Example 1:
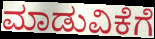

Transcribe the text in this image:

ಮಾಡುವಿಕೆಗೆ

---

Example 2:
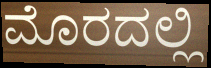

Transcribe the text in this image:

ಮೊರದಲ್ಲಿ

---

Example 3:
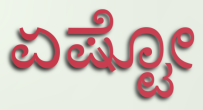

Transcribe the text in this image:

ಏಷ್ಟೋ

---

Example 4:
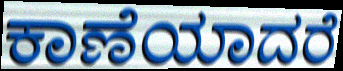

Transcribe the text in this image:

ಕಾಣೆಯಾದರೆ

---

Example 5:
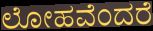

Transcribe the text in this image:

ಲೋಹವೆಂದರೆ